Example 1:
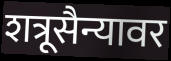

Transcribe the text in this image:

शत्रूसैन्यावर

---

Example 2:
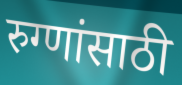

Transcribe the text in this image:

रुग्णांसाठी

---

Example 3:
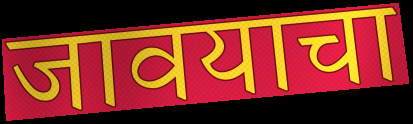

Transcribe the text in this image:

जावयाचा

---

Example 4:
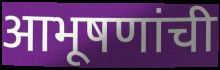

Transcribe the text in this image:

आभूषणांची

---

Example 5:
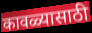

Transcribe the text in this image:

कावळ्यासाठी